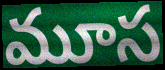
మూస